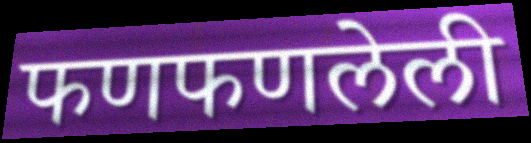
फणफणलेली